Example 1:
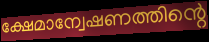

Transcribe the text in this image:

ക്ഷേമാന്വേഷണത്തിന്റെ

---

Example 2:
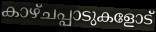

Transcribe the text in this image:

കാഴ്ചപ്പാടുകളോട്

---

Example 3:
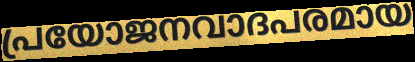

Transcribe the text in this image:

പ്രയോജനവാദപരമായ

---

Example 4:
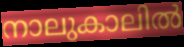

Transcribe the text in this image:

നാലുകാലിൽ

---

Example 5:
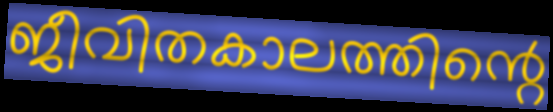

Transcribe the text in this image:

ജീവിതകാലത്തിന്റെ